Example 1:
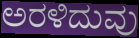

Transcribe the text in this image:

ಅರಳಿದುವು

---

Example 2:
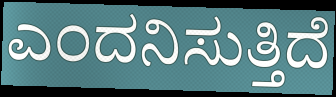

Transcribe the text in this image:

ಎಂದನಿಸುತ್ತಿದೆ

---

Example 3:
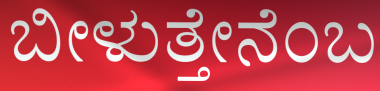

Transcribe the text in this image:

ಬೀಳುತ್ತೇನೆಂಬ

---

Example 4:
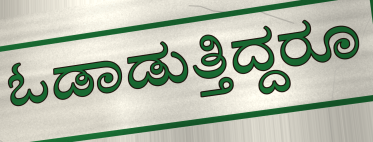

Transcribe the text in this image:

ಓಡಾಡುತ್ತಿದ್ದರೂ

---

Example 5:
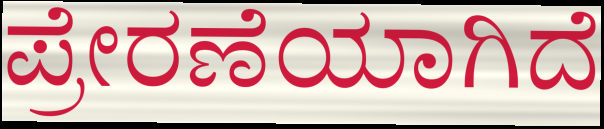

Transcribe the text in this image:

ಪ್ರೇರಣೆಯಾಗಿದೆ